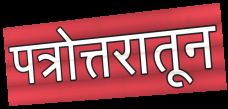
पत्रोत्तरातून